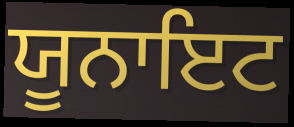
ਯੂਨਾਇਟ